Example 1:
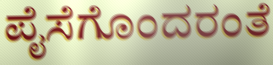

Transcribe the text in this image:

ಪೈಸೆಗೊಂದರಂತೆ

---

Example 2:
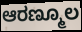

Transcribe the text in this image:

ಆರಣ್ಮೂಲ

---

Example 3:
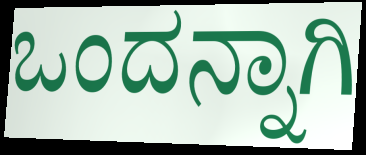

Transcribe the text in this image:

ಒಂದನ್ನಾಗಿ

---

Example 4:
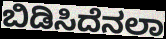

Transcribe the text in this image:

ಬಿಡಿಸಿದೆನಲಾ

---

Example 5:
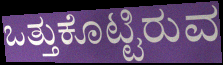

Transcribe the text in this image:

ಒತ್ತುಕೊಟ್ಟಿರುವ